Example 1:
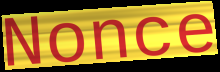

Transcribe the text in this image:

Nonce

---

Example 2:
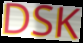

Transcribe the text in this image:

DSK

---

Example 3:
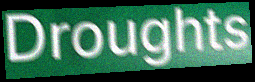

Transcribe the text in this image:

Droughts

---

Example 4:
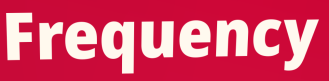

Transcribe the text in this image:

Frequency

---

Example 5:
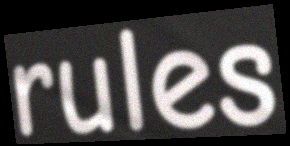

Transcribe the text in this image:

rules